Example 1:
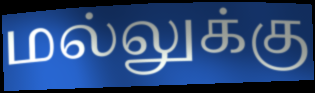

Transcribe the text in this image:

மல்லுக்கு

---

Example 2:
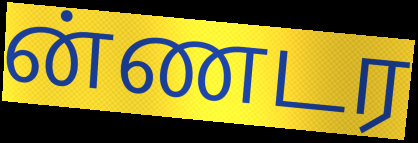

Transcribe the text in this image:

ன்ணடர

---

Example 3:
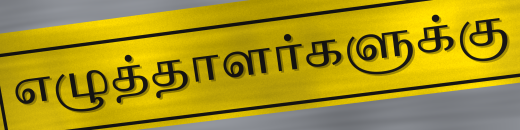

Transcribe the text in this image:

எழுத்தாளர்களுக்கு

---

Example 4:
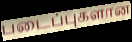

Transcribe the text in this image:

படைப்புகளான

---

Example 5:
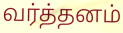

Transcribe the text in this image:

வர்த்தனம்